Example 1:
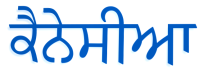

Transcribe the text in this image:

ਕੈਨੇਸੀਆ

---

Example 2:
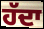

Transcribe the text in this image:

ਹੱਦਾ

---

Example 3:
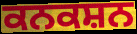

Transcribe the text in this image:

ਕਨਕਸ਼ਨ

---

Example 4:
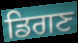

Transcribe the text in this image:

ਡਿਗਣ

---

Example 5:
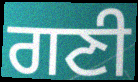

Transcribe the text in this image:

ਗਣੀ